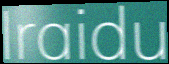
Iraidu